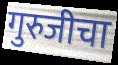
गुरुजीचा